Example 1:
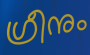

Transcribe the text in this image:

ഗ്രീനും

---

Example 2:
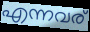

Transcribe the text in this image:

എന്നവര്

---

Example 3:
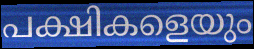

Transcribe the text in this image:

പക്ഷികളെയും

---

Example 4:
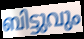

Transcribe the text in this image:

ബിട്ടുവും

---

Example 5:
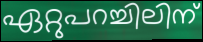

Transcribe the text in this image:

ഏറ്റുപറച്ചിലിന്